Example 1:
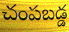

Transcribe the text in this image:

చంపబడ్డ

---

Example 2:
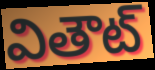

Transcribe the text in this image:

వితౌట్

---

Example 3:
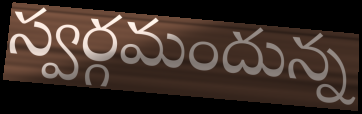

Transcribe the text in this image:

స్వర్గమందున్న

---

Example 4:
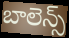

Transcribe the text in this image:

బాలెన్స్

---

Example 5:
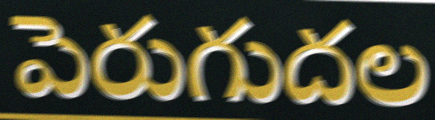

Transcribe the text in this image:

పెరుగుదల